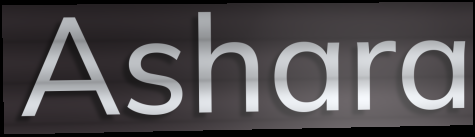
Ashara